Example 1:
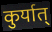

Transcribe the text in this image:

कुर्यात्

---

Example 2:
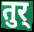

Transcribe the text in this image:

तुर्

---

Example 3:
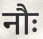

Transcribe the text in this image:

नौः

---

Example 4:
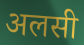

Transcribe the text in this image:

अलसी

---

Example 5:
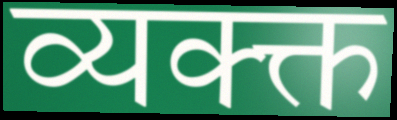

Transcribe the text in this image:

व्यक्क्त